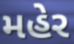
મહેર